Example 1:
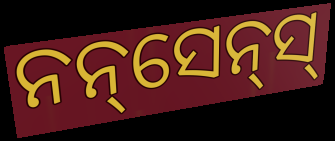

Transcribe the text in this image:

ନନ୍‌ସେନ୍‌ସ୍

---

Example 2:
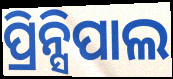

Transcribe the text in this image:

ପ୍ରିନ୍ସିପାଲ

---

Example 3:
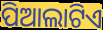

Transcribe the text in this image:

ପିଆଲାଟିଏ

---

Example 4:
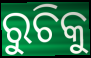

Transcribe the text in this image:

ରୁଚିକୁ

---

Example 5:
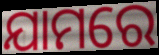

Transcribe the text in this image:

ଯାମରେ